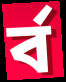
র্ব